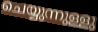
ചെയ്യുന്നുള്ളു